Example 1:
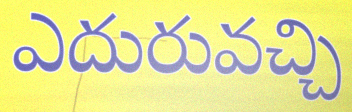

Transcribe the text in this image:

ఎదురువచ్చి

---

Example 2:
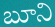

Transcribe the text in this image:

బూని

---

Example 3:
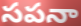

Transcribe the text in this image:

సపనా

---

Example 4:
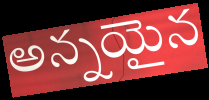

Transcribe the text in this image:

అన్నయైన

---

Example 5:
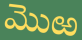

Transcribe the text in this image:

మొఱ